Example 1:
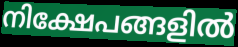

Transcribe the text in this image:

നിക്ഷേപങ്ങളിൽ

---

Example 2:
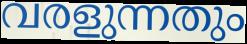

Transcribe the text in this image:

വരളുന്നതും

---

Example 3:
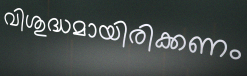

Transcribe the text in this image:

വിശുദ്ധമായിരിക്കണം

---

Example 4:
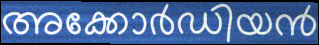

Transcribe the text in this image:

അക്കോർഡിയൻ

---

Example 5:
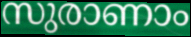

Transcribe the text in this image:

സുരാണാം